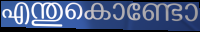
എന്തുകൊണ്ടോ